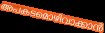
അപകടമൊഴിവാക്കാൻ